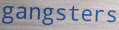
gangsters